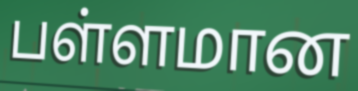
பள்ளமான